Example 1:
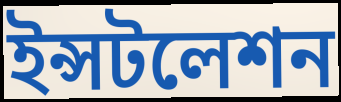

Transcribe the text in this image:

ইন্সটলেশন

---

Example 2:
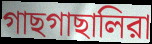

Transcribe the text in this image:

গাছগাছালিরা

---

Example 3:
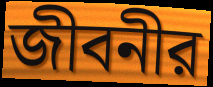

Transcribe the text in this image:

জীবনীর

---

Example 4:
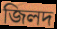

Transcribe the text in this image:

জিলদ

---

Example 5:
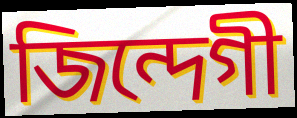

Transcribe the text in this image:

জিন্দেগী